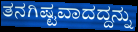
ತನಗಿಷ್ಟವಾದದ್ದನ್ನು